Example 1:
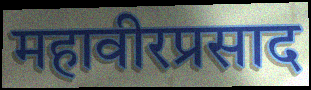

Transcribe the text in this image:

महावीरप्रसाद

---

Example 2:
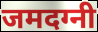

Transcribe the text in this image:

जमदग्नी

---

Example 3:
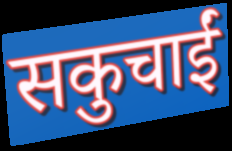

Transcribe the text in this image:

सकुचाईं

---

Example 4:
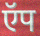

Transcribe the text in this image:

ऍप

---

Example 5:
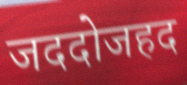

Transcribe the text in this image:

जददोजहद